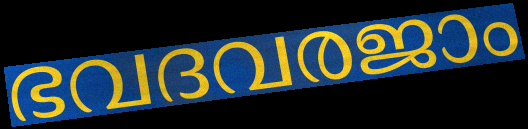
ഭവദവരജാം